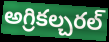
అగ్రికల్చరల్